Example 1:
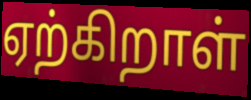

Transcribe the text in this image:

ஏற்கிறாள்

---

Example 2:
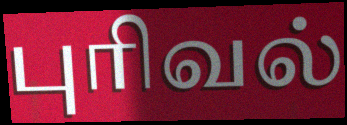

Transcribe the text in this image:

புரிவல்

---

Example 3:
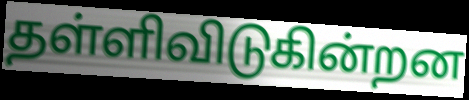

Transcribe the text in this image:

தள்ளிவிடுகின்றன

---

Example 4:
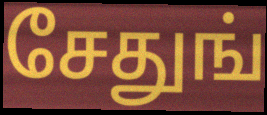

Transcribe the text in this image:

சேதுங்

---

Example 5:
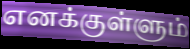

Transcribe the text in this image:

எனக்குள்ளும்